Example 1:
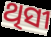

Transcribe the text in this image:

ଥିସୀ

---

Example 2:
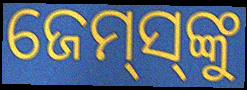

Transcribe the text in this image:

ଜେମ୍‌ସ୍‌ଙ୍କୁ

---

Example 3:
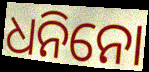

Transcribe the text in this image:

ଧନିନୋ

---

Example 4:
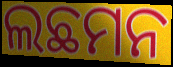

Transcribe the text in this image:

ଲଛମନ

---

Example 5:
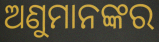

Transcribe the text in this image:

ଅଣୁମାନଙ୍କର